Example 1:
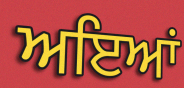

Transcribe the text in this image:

ਅਇਆਂ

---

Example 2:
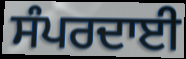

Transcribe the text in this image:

ਸੰਪਰਦਾਈ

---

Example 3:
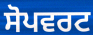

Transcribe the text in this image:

ਸੋਪਵਰਟ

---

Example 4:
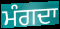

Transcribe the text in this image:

ਮੰਗਦਾ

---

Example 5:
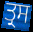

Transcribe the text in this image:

ਤ੍ਰਸ